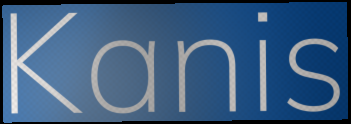
Kanis